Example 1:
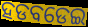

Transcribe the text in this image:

ହଡବଡେଇ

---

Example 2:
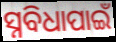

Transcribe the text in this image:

ସ୍ନବିଧାପାଇଁ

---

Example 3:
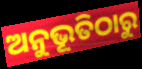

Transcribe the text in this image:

ଅନୁଭୂତିଠାରୁ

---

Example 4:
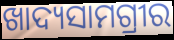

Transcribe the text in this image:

ଖାଦ୍ୟସାମଗ୍ରୀର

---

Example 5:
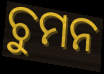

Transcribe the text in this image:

ଚୁମନ